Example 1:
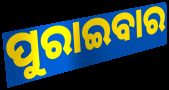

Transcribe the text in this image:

ପୁରାଇବାର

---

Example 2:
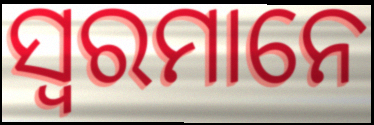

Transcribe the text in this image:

ସ୍ୱରମାନେ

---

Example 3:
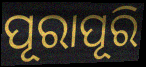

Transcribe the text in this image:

ପୂରାପୂରି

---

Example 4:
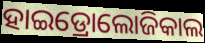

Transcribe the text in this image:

ହାଇଡ୍ରୋଲୋଜିକାଲ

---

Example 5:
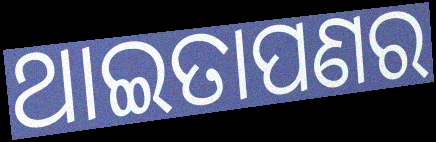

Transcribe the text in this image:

ଥାଇତାପଣର